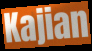
Kajian